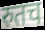
रुतच